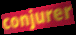
conjurer